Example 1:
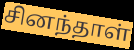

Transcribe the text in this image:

சினந்தாள்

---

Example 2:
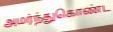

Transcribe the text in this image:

அமர்ந்துகொண்ட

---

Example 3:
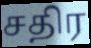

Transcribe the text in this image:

சதிர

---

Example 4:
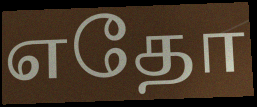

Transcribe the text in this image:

எதோ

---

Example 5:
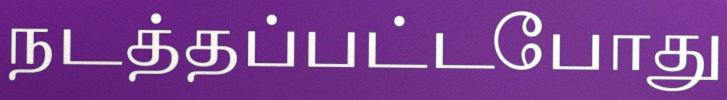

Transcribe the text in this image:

நடத்தப்பட்டபோது